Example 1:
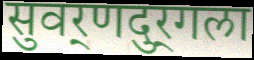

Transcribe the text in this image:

सुवर्णदुर्गला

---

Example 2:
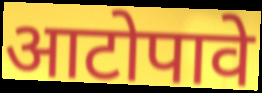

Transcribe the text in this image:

आटोपावे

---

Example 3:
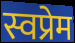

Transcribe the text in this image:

स्वप्रेम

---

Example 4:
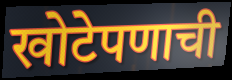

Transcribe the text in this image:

खोटेपणाची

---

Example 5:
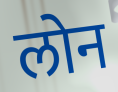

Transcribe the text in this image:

लोन